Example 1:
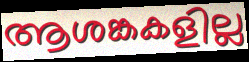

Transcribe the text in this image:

ആശങ്കകളില്ല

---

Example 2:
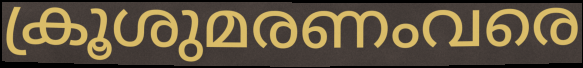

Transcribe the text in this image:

ക്രൂശുമരണംവരെ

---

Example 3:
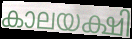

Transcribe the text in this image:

കാലയക്ഷി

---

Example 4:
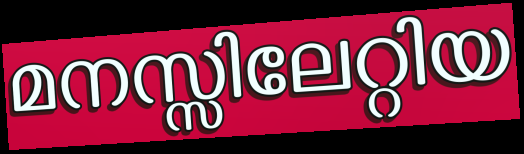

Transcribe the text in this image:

മനസ്സിലേറ്റിയ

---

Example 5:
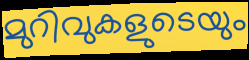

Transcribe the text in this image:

മുറിവുകളുടെയും